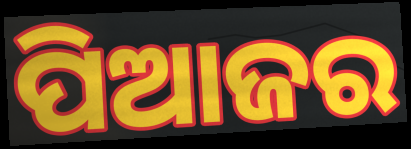
ପିଆଜର